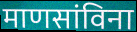
माणसांविना